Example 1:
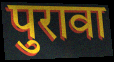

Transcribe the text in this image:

पुरावा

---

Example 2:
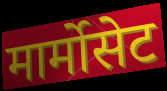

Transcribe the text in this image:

मार्मोसेट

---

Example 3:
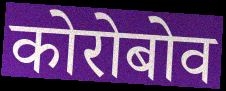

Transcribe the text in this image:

कोरोबोव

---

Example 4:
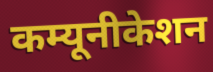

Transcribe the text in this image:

कम्यूनीकेशन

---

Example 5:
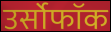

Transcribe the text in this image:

उर्सोफॉक